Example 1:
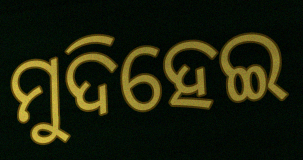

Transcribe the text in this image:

ମୁଦିହେଇ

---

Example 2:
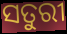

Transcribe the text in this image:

ସତୁରୀ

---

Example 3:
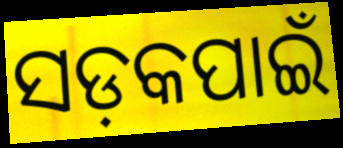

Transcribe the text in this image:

ସଡ଼କପାଇଁ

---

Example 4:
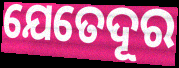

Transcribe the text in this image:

ଯେତେଦୂର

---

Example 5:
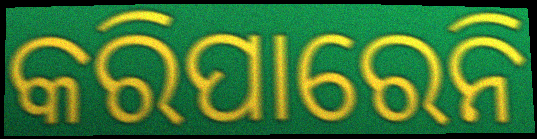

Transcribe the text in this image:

କରିପାରେନି